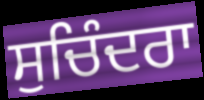
ਸੁਚਿੰਦਰਾ